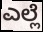
ಎಲ್ಲೆ